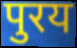
पुरय